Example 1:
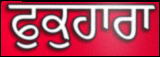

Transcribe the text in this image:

ਫੁਕੁਹਾਰਾ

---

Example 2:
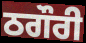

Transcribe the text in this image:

ਠਗੌਰੀ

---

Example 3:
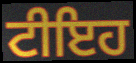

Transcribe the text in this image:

ਟੀਇਹ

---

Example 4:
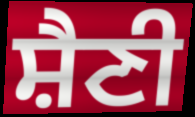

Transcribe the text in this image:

ਸ਼ੈਣੀ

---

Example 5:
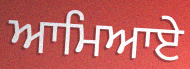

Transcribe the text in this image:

ਆਮਿਆਏ